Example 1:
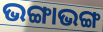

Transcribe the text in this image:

ଭଙ୍ଗାଭଙ୍ଗ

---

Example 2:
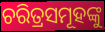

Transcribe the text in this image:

ଚରିତ୍ରସମୂହଙ୍କୁ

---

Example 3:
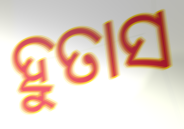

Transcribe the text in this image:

ହୁତାସ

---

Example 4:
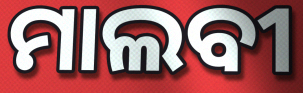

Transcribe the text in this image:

ମାଲବୀ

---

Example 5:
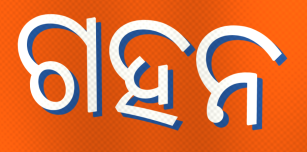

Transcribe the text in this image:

ଗହନ